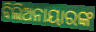
ବିଲିଅନାୟାରଙ୍କ